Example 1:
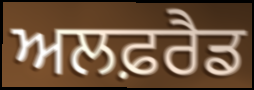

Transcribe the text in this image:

ਅਲਫ਼ਰੈਡ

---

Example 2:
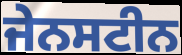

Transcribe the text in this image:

ਜੇਨਸਟੀਨ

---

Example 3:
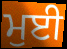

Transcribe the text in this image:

ਮੁਈ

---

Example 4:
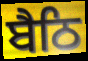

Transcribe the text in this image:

ਬੈਠਿ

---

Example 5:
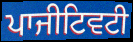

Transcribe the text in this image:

ਪਾਜੀਟਿਵਟੀ